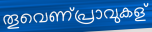
തൂവെണ്പ്രാവുകള്